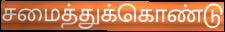
சமைத்துக்கொண்டு